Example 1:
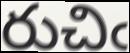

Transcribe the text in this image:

రుచిఁ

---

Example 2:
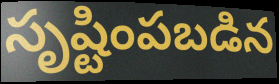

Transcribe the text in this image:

సృష్టింపబడిన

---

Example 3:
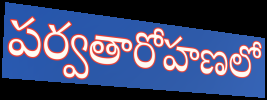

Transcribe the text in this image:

పర్వతారోహణలో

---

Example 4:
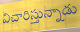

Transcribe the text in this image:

విచారిస్తున్నాడు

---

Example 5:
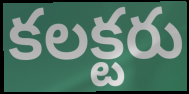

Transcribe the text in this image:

కలక్టరు